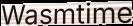
Wasmtime